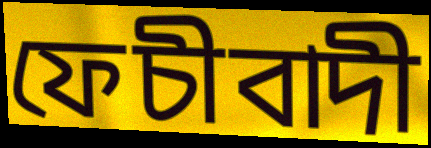
ফেচীবাদী